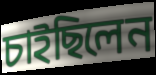
চাইছিলেন